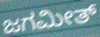
ಜಗಮೀತ್